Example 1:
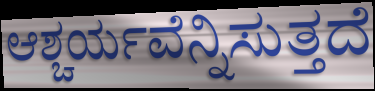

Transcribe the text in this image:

ಆಶ್ಚರ್ಯವೆನ್ನಿಸುತ್ತದೆ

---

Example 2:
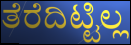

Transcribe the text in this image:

ತೆರೆದಿಟ್ಟಿಲ್ಲ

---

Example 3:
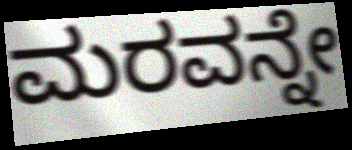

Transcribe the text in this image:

ಮರವನ್ನೇ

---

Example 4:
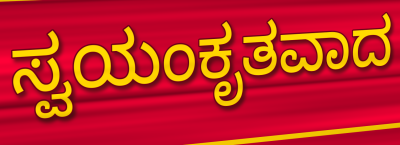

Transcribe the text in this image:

ಸ್ವಯಂಕೃತವಾದ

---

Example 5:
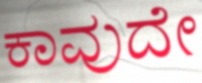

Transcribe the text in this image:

ಕಾವುದೇ